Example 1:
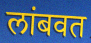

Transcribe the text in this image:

लांबवत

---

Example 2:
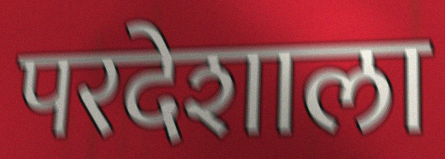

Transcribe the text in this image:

परदेशाला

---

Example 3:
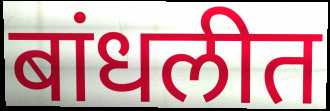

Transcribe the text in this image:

बांधलीत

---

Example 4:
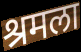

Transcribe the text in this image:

श्रमला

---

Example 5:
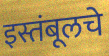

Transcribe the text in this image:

इस्तंबूलचे